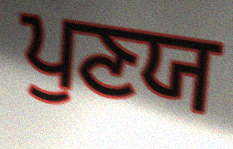
ਪੁਣਯ